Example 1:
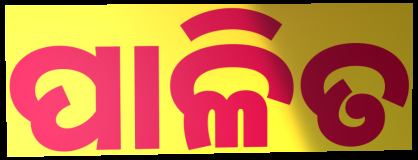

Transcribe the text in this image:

ପାଳିତ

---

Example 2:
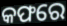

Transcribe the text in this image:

କଫରେ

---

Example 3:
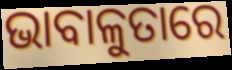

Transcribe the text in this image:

ଭାବାଳୁତାରେ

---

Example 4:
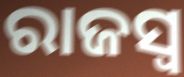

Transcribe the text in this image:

ରାଜସ୍ୱ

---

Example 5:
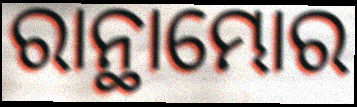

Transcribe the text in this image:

ରାନ୍ଥାମ୍ଭୋର